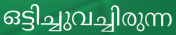
ഒട്ടിച്ചുവച്ചിരുന്ന